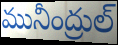
మునీంద్రుల్